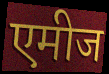
एमीज